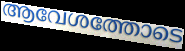
ആവേശത്തോടെ